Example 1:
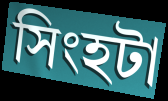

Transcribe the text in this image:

সিংহটা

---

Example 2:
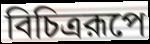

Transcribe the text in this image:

বিচিত্ররূপে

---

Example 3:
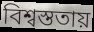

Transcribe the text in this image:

বিশ্বস্ততায়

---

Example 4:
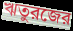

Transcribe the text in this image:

ঋতুরজের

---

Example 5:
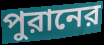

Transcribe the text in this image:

পুরানের